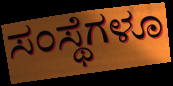
ಸಂಸ್ಥೆಗಳೂ